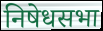
निषेधसभा